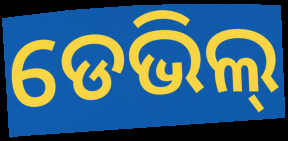
ଡେଭିଲ୍